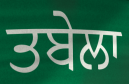
ਤਬੇਲਾ